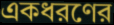
একধরণের